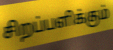
சிறப்பளிக்கும்